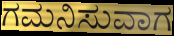
ಗಮನಿಸುವಾಗ